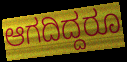
ಆಗದಿದ್ದರೂ